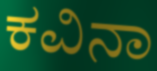
ಕವಿನಾ